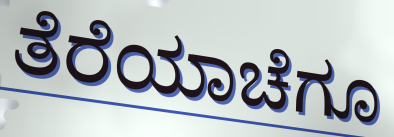
ತೆರೆಯಾಚೆಗೂ